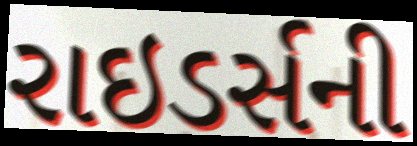
રાઇડર્સની